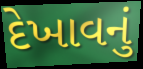
દેખાવનું